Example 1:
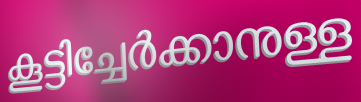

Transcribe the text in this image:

കൂട്ടിച്ചേർക്കാനുള്ള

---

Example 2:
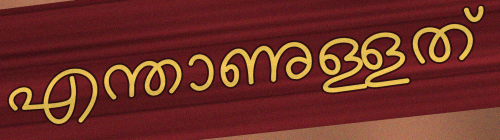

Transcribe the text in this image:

എന്താണുള്ളത്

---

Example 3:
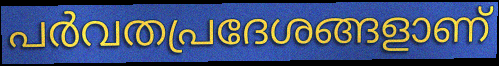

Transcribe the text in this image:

പർവതപ്രദേശങ്ങളാണ്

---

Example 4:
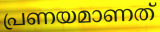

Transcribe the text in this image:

പ്രണയമാണത്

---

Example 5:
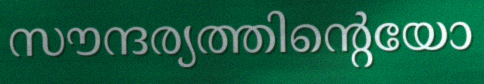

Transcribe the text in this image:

സൗന്ദര്യത്തിന്റെയോ